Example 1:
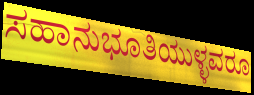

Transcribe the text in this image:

ಸಹಾನುಭೂತಿಯುಳ್ಳವರೂ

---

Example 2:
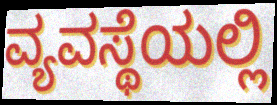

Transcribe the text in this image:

ವ್ಯವಸ್ಥೆಯಲ್ಲಿ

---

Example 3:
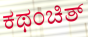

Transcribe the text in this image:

ಕಥಂಚಿತ್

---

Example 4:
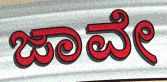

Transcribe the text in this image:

ಜಾವೇ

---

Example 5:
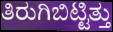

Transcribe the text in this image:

ತಿರುಗಿಬಿಟ್ಟಿತ್ತು